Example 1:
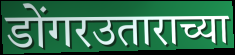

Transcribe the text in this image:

डोंगरउताराच्या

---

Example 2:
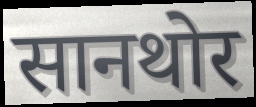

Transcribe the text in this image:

सानथोर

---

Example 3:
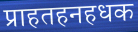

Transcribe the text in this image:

प्राहतहनहधक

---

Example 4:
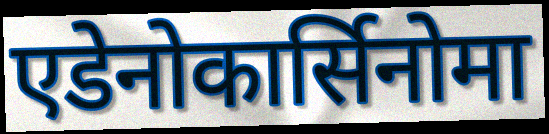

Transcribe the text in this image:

एडेनोकार्सिनोमा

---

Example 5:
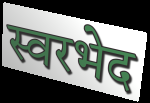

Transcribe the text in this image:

स्वरभेद